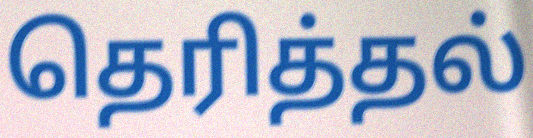
தெரித்தல்